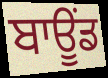
ਬਾਊਂਡ